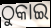
ଠୁକାଇ